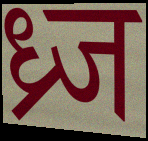
ध्र्ज